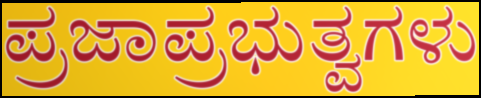
ಪ್ರಜಾಪ್ರಭುತ್ವಗಳು